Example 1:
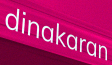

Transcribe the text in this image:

dinakaran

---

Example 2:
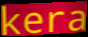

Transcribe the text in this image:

kera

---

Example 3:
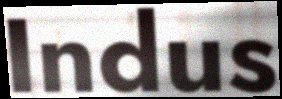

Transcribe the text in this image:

Indus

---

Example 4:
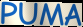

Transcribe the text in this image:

PUMA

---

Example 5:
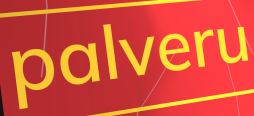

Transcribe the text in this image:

palveru